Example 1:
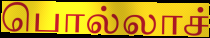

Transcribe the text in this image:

பொல்லாச்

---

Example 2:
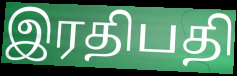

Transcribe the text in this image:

இரதிபதி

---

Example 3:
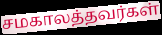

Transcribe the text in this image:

சமகாலத்தவர்கள்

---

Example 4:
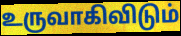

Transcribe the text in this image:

உருவாகிவிடும்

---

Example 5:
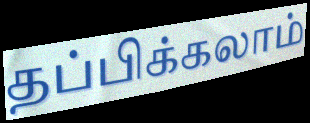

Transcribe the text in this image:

தப்பிக்கலாம்